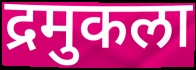
द्रमुकला